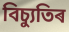
বিচ্যুতিৰ